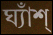
ঘ্যাঁশ্